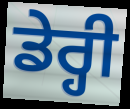
ਡੇਰ੍ਹੀ